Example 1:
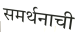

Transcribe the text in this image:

समर्थनाची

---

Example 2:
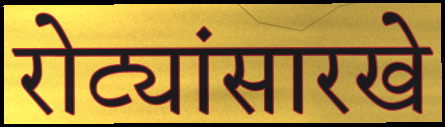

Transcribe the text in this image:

रोट्यांसारखे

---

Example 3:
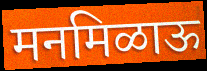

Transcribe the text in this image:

मनमिळाऊ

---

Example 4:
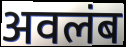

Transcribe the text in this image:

अवलंब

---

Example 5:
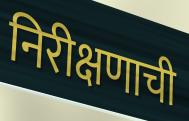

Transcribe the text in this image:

निरीक्षणाची